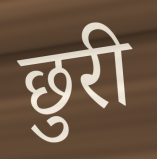
छुरी